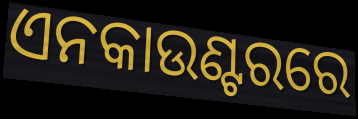
ଏନକାଉଣ୍ଟରରେ